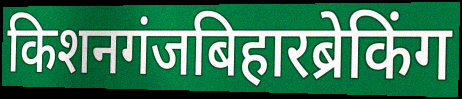
किशनगंजबिहारब्रेकिंग